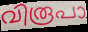
വിരൂപാ